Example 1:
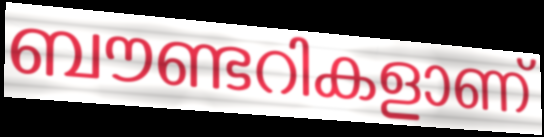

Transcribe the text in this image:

ബൗണ്ടറികളാണ്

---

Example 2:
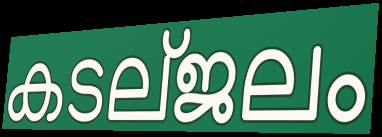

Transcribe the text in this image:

കടല്ജലം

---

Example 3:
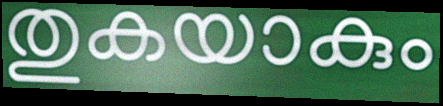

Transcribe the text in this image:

തുകയാകും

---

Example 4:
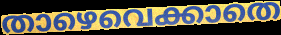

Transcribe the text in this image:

താഴെവെക്കാതെ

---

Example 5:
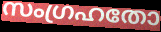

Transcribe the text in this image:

സംഗ്രഹതോ